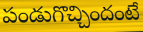
పండుగొచ్చిందంటే